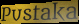
Pustaka